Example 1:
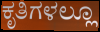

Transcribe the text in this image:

ಕೃತಿಗಳಲ್ಲೂ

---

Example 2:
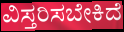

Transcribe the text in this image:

ವಿಸ್ತರಿಸಬೇಕಿದೆ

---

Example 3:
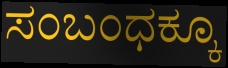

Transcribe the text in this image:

ಸಂಬಂಧಕ್ಕೂ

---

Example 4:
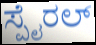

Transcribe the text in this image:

ಸ್ಪೈರಲ್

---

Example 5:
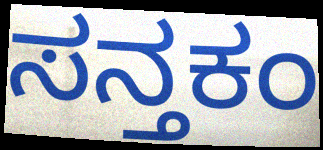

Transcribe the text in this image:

ಸನ್ತಕಂ